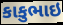
કાકુભાઇ